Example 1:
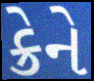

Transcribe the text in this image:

ક્રેને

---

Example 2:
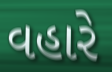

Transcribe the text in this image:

વહારે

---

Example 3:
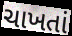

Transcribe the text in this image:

ચાખતાં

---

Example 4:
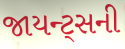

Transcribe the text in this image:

જાયન્ટ્સની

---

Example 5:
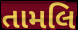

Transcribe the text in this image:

તામલિ